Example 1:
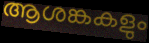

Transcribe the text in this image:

ആശങ്കകളും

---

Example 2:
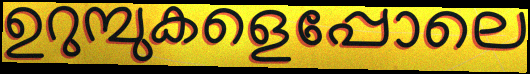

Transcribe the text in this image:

ഉറുമ്പുകളെപ്പോലെ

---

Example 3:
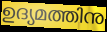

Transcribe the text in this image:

ഉദ്യമത്തിനു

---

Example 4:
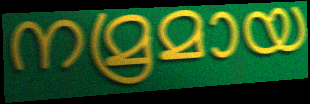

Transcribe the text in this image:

നമ്രമായ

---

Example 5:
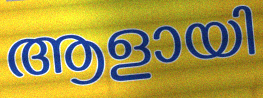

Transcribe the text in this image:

ആളായി